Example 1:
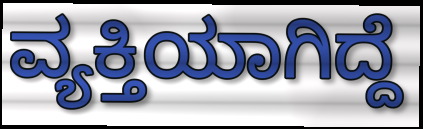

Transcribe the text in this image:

ವ್ಯಕ್ತಿಯಾಗಿದ್ದೆ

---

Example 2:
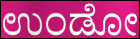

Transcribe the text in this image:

ಉಂಡೋ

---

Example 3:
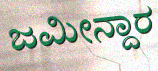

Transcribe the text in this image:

ಜಮೀನ್ದಾರ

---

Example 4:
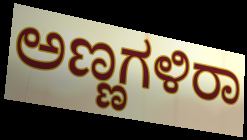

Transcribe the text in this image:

ಅಣ್ಣಗಳಿರಾ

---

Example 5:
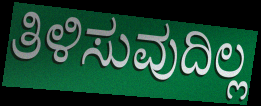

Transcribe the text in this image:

ತಿಳಿಸುವುದಿಲ್ಲ